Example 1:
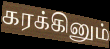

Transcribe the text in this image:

கரக்கினும்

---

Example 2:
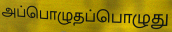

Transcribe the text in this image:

அப்பொழுதப்பொழுது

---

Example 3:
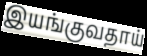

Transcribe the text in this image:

இயங்குவதாய்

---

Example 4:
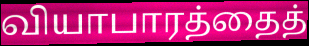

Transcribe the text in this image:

வியாபாரத்தைத்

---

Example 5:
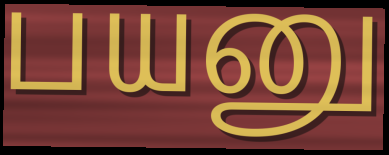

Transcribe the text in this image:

பயனு